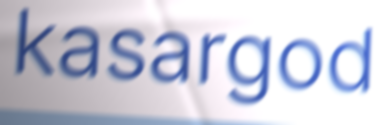
kasargod